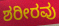
ಶರೀರವು